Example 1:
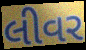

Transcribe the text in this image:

લીવર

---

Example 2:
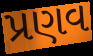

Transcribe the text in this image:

પ્રણવ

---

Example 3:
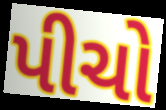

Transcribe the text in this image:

પીચો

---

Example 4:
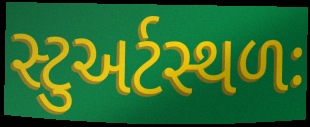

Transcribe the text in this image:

સ્ટુઅર્ટસ્થળઃ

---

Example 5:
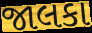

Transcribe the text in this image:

જાલકા